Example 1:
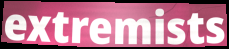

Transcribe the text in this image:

extremists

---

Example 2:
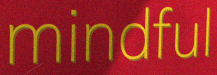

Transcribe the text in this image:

mindful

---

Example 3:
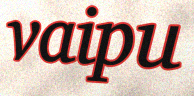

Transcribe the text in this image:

vaipu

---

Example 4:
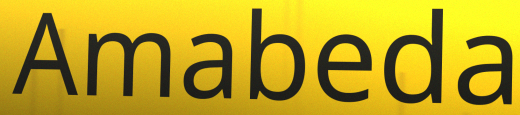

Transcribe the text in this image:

Amabeda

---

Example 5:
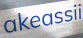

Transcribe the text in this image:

akeassii